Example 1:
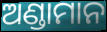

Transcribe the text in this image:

ଅଣ୍ଡାମାନ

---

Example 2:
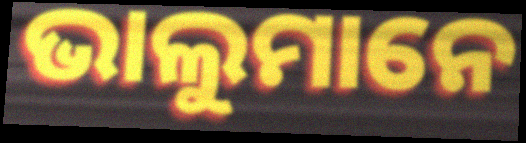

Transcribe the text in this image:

ଭାଲୁମାନେ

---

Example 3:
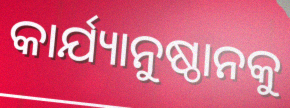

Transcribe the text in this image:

କାର୍ଯ୍ୟାନୁଷ୍ଠାନକୁ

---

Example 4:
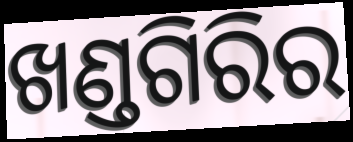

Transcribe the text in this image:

ଖଣ୍ଡଗିରିର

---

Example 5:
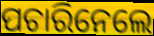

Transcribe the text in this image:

ପଚାରିନେଲେ